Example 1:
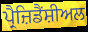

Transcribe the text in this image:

ਪ੍ਰੈਜ਼ਿਡੈਂਸ਼ੀਅਲ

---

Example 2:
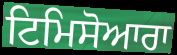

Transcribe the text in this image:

ਟਿਮਿਸੋਆਰਾ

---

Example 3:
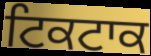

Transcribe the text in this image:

ਟਿਕਟਾਕ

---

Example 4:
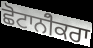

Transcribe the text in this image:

ਛੋਟਾਨੀੱਕਰਾ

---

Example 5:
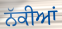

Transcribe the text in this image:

ਨੱਕੀਆਂ